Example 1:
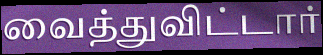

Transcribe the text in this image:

வைத்துவிட்டார்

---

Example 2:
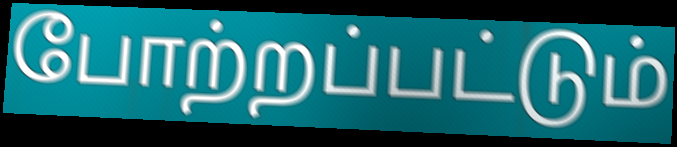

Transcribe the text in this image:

போற்றப்பட்டும்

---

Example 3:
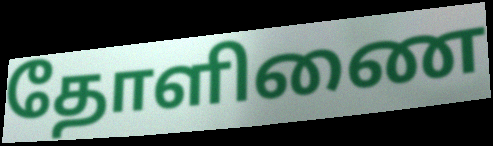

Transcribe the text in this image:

தோளிணை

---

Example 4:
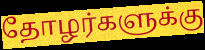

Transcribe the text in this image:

தோழர்களுக்கு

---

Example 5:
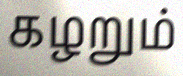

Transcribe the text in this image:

கழறும்